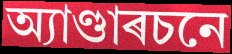
অ্যাণ্ডাৰচনে